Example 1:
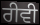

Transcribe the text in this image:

ਰੀਵੀ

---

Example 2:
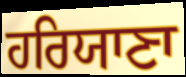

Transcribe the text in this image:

ਹਰਿਯਾਣਾ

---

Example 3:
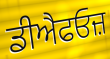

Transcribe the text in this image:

ਡੀਐਫਓਜ਼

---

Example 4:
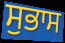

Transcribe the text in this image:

ਸੁਭਾਸ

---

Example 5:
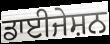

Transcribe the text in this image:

ਡਾਈਜੇਸ਼ਨ